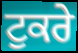
ਟੁਕਰੇ